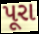
પૂરા